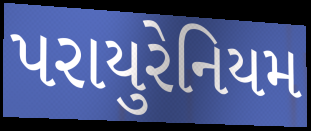
પરાયુરેનિયમ